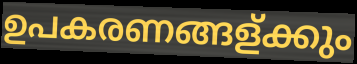
ഉപകരണങ്ങള്ക്കും